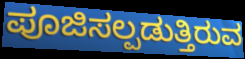
ಪೂಜಿಸಲ್ಪಡುತ್ತಿರುವ